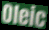
Oleic